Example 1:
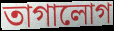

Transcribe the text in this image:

তাগালোগ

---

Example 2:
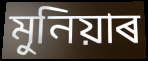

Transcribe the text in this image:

মুনিয়াৰ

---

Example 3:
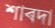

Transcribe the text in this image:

শাৰদা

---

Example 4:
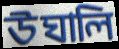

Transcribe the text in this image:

উঘালি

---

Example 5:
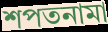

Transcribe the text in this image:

শপতনামা